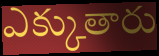
ఎక్కుతారు